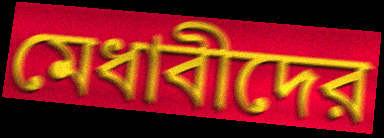
মেধাবীদের